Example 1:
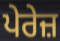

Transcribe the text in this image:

ਪੇਰੇਜ਼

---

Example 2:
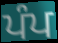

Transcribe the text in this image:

ਪੰਪ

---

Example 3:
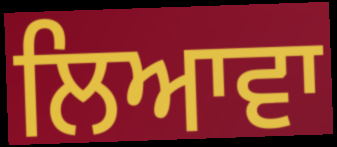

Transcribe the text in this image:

ਲਿਆਵਾ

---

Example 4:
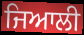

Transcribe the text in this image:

ਜਿਆਲੀ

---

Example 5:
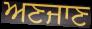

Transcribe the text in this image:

ਅਣਜਾਣ